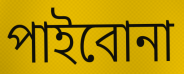
পাইবোনা